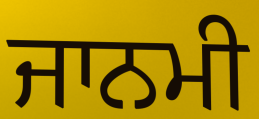
ਜਾਨਮੀ